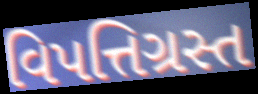
વિપત્તિગ્રસ્ત